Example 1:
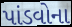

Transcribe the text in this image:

પાંડવોના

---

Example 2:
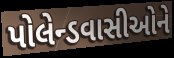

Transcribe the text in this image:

પોલેન્ડવાસીઓને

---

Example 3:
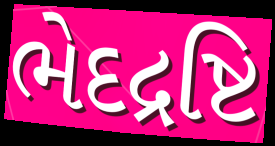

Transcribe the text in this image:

ભેદદ્રષ્ટિ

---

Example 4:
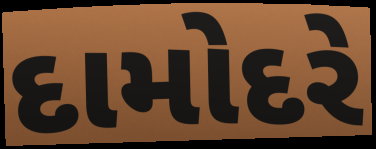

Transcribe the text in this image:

દામોદરે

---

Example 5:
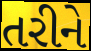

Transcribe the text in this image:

તરીને